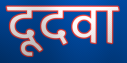
दूदवा